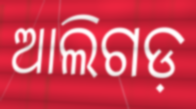
ଆଲିଗଡ଼